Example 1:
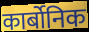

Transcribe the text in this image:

कार्बोनिक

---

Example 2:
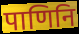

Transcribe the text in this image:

पाणिनि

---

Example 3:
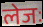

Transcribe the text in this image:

लेजः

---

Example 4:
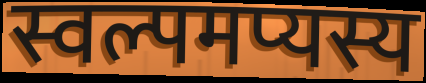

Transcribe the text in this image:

स्वल्पमप्यस्य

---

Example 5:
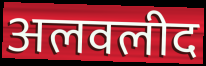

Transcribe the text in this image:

अलवलीद